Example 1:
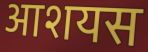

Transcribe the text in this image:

आशयस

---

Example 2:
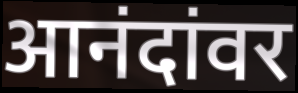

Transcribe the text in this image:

आनंदांवर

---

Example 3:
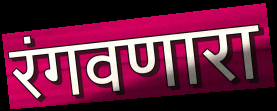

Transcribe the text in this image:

रंगवणारा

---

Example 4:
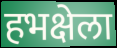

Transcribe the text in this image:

हभक्षेला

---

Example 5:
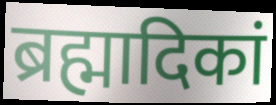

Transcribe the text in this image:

ब्रह्मादिकां